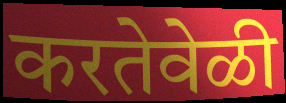
करतेवेळी